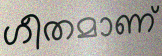
ഗീതമാണ്